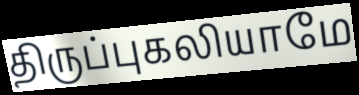
திருப்புகலியாமே